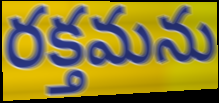
రక్తమను